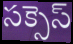
సక్సెస్